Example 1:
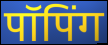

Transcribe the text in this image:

पॉपिंग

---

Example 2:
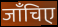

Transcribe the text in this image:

जाँचिए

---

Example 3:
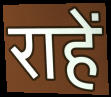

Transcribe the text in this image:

राहें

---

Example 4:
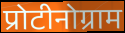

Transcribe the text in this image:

प्रोटीनोग्राम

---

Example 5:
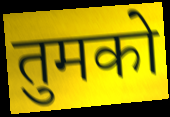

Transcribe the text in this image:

तुमको